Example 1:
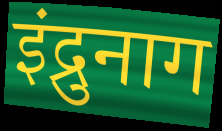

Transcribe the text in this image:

इंद्रुनाग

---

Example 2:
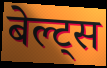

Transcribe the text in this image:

बेल्ट्स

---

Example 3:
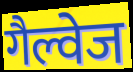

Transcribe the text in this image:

गैल्वेज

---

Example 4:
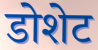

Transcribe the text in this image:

डोशेट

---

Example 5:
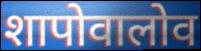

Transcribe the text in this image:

शापोवालोव